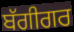
ਬੱਗੀਗਰ